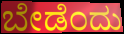
ಬೇಡೆಂದು